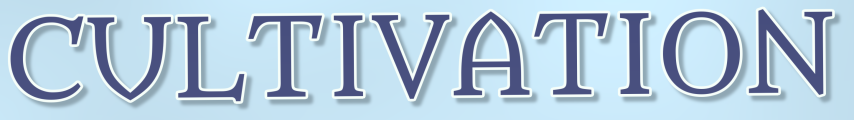
CULTIVATION